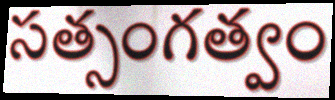
సత్సంగత్వం